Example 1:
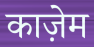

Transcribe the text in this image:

काज़ेम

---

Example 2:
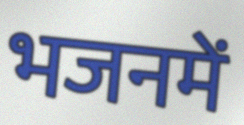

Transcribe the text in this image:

भजनमें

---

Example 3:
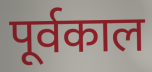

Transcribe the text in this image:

पूर्वकाल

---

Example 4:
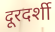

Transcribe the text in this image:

दूरदर्शी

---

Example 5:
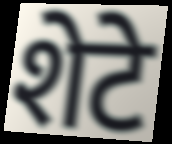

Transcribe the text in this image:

शेटे